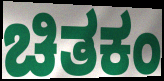
ಚಿತಕಂ